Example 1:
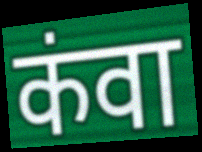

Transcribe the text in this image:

कंवा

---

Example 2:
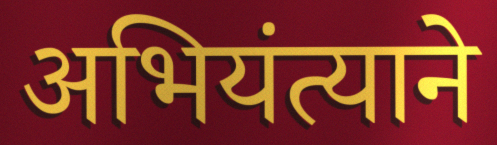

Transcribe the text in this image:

अभियंत्याने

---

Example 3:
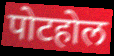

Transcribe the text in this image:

पोटहोल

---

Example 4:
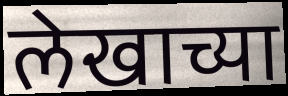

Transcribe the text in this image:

लेखाच्या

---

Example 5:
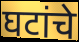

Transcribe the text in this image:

घटांचे